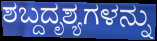
ಶಬ್ದದೃಶ್ಯಗಳನ್ನು